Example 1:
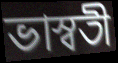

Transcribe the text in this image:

ভাস্বতী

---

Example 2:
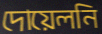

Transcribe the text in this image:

দোয়েলনি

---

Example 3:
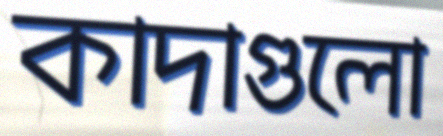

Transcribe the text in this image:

কাদাগুলো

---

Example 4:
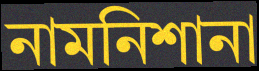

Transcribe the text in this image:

নামনিশানা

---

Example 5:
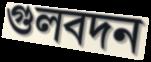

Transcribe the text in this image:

গুলবদন